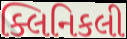
ક્લિનિકલી